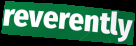
reverently